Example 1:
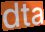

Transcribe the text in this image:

dta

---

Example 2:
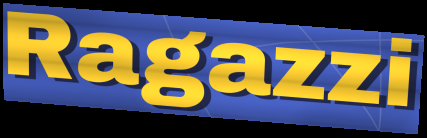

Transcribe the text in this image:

Ragazzi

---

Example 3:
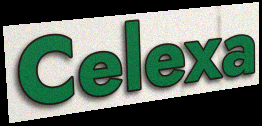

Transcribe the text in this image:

Celexa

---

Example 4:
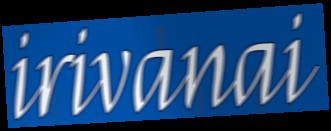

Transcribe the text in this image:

irivanai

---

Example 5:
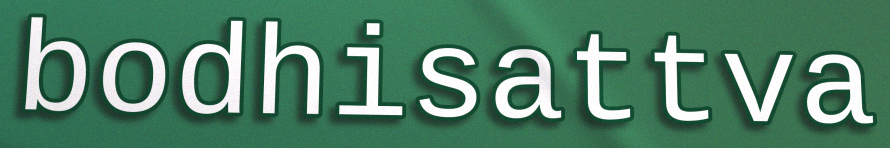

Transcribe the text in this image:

bodhisattva